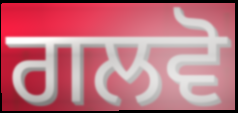
ਗਲਵੋ